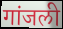
गांजली